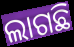
ଲାଗଛି